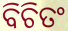
ବିଚିତଂ